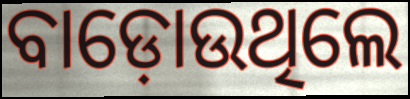
ବାଡ଼ୋଉଥିଲେ